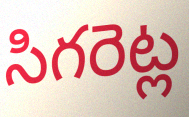
సిగరెట్ల